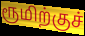
ரூமிற்குச்